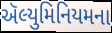
ઍલ્યુમિનિયમના